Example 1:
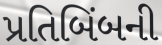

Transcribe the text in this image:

પ્રતિબિંબની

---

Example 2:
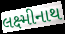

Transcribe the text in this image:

લક્ષ્મીનાથ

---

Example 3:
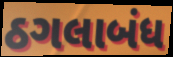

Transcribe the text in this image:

ઠગલાબંધ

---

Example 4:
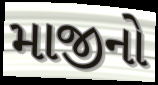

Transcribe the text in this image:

માજીનો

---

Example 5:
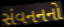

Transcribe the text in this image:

સંવનનનો